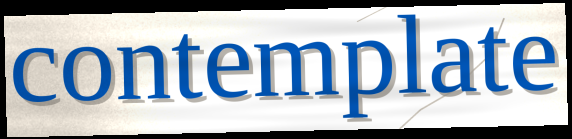
contemplate